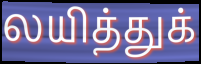
லயித்துக்